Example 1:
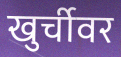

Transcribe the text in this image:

खुर्चीवर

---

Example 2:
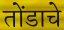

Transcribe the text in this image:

तोंडाचे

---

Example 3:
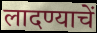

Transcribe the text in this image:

लादण्याचें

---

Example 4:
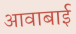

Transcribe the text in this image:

आवाबाई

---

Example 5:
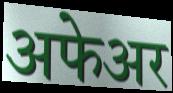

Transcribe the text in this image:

अफेअर